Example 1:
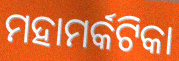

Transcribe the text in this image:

ମହାମର୍କଟିକା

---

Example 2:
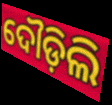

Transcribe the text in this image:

ଦୌଡ଼ିଲି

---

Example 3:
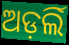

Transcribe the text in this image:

ଅଡ଼ର୍ଲି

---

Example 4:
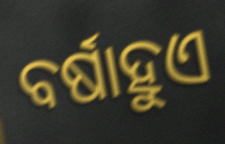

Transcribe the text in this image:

ବର୍ଷାହୁଏ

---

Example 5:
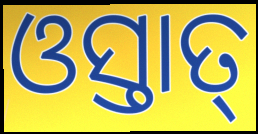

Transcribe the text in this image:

ଓସ୍ତାତ୍